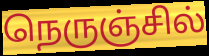
நெருஞ்சில்